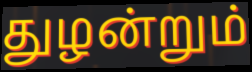
துழன்றும்